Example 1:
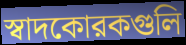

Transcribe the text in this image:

স্বাদকোরকগুলি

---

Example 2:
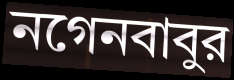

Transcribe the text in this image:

নগেনবাবুর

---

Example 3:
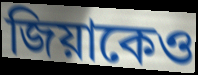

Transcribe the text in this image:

জিয়াকেও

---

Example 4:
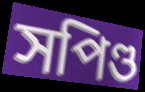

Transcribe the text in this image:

সপিণ্ড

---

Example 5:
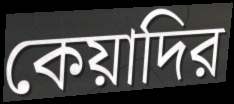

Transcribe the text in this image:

কেয়াদির